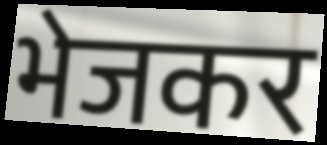
भेजकर